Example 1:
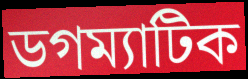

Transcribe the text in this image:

ডগম্যাটিক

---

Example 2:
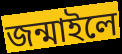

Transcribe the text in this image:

জন্মাইলে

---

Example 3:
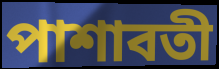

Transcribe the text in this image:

পাশাবতী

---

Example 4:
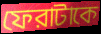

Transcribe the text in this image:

ফেরাটাকে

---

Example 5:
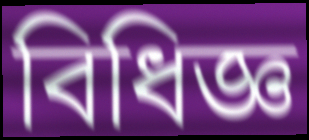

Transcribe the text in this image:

বিধিজ্ঞ